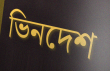
ভিনদেশ